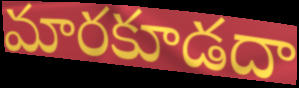
మారకూడదా